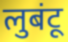
लुबंटू